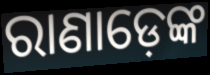
ରାଣାଡ଼େଙ୍କ